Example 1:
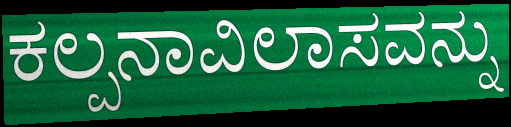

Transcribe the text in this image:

ಕಲ್ಪನಾವಿಲಾಸವನ್ನು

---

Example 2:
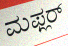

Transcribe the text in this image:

ಮಫ್ಲರ್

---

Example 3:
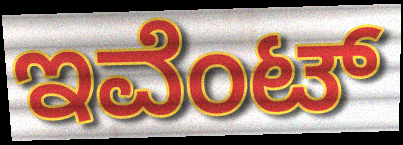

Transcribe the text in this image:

ಇವೆಂಟ್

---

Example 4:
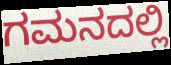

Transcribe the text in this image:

ಗಮನದಲ್ಲಿ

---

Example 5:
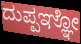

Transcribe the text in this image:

ದುಪ್ಪಞ್ಞೋ